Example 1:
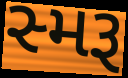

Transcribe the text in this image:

સ્મરૂ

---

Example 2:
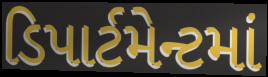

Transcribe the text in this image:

ડિપાર્ટમેન્ટમાં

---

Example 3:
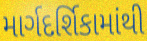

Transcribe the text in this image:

માર્ગદર્શિકામાંથી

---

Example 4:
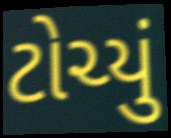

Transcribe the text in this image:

ટોચ્યું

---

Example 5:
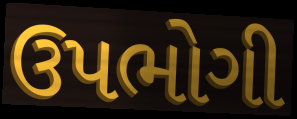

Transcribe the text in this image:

ઉપભોગી